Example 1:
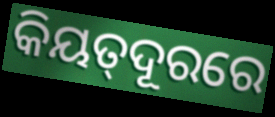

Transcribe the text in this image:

କିୟତ୍‌ଦୂରରେ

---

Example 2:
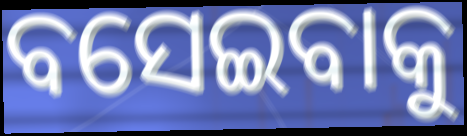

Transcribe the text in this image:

ବସେଇବାକୁ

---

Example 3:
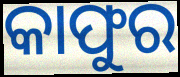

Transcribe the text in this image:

କାଫୁର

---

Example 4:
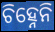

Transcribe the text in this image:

ଚିହ୍ନେନି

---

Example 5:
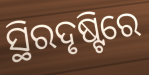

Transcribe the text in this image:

ସ୍ଥିରଦୃଷ୍ଟିରେ